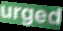
urged